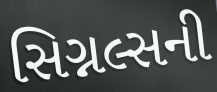
સિગ્નલ્સની